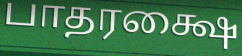
பாதரக்ஷை